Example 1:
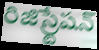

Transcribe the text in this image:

రిజిస్ర్టేషన్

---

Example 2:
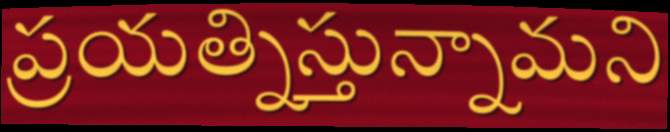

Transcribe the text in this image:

ప్రయత్నిస్తున్నామని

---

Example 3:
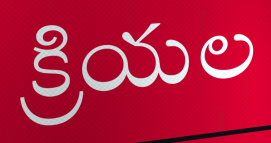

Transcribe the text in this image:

క్రియల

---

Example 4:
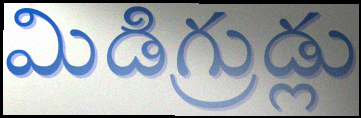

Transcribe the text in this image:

మిడిగ్రుడ్లు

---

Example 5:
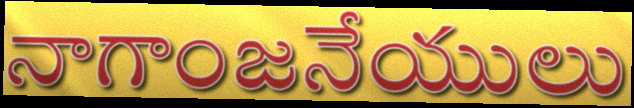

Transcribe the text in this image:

నాగాంజనేయులు